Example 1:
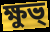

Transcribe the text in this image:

ক্ষুভ্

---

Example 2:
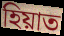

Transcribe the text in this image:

হিয়াত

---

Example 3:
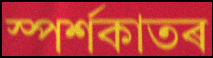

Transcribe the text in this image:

স্পৰ্শকাতৰ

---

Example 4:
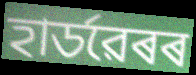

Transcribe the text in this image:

হাৰ্ডৱেৰৰ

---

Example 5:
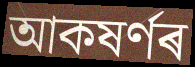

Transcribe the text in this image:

আকষৰ্ণৰ